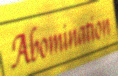
Abomination